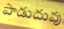
పాడుదువు